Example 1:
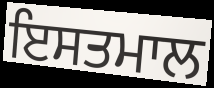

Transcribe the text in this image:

ਇਸਤਮਾਲ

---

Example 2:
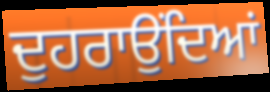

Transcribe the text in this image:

ਦੁਹਰਾਉਂਦਿਆਂ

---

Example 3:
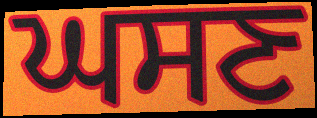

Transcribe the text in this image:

ਘਸਣ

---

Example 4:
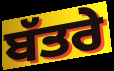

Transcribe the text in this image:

ਬੱਤਰੇ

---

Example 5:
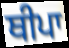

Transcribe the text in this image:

ਥੀਪਾ